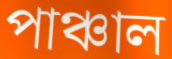
পাঞ্চাল